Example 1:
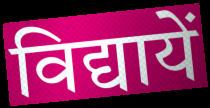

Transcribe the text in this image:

विद्यायें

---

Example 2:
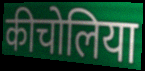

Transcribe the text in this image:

कीचोलिया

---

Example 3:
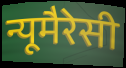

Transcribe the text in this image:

न्यूमैरेसी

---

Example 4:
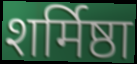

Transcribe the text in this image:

शर्मिष्ठा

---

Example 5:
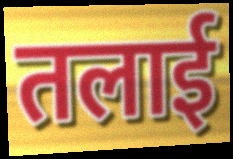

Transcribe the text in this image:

तलाई